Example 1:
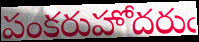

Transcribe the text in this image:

పంకరుహోదరుఁ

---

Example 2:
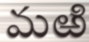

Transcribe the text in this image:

మఱి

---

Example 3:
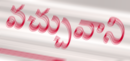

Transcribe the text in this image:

వచ్చువాని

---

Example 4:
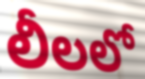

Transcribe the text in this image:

లీలలో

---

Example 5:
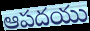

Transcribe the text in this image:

ఆపదయు